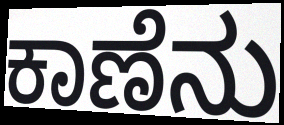
ಕಾಣೆನು